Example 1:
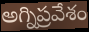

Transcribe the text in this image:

అగ్నిప్రవేశం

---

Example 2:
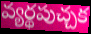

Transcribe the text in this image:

వ్యర్థపుచ్చక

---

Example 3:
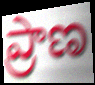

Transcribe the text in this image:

ప్రాణ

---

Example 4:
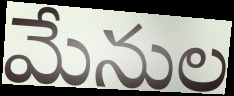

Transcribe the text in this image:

మేనుల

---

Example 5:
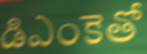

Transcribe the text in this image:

డిఎంకెతో